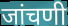
जांचणी